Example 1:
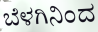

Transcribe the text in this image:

ಬೆಳಗಿನಿಂದ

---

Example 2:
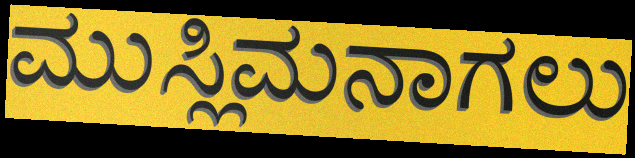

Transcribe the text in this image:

ಮುಸ್ಲಿಮನಾಗಲು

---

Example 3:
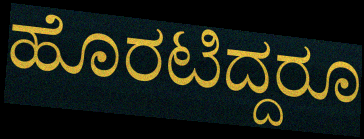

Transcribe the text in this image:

ಹೊರಟಿದ್ದರೂ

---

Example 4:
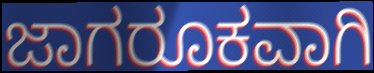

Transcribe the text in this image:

ಜಾಗರೂಕವಾಗಿ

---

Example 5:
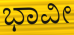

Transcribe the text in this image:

ಭಾವೀ